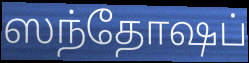
ஸந்தோஷப்